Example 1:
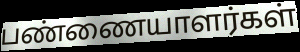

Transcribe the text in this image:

பண்ணையாளர்கள்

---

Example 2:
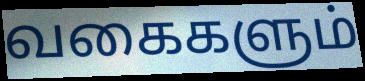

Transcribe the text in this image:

வகைகளும்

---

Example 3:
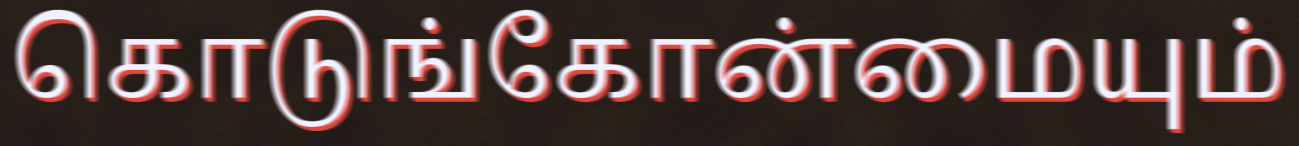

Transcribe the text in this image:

கொடுங்கோன்மையும்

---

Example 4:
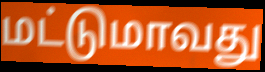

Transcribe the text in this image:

மட்டுமாவது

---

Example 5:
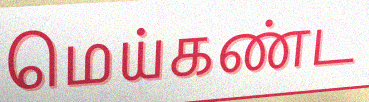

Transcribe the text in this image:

மெய்கண்ட